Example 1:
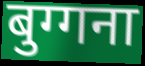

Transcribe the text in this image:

बुग्गना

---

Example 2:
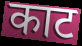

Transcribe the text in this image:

काट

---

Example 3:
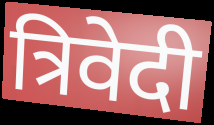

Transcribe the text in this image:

त्रिवेदी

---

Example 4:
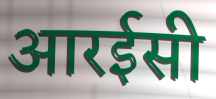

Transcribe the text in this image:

आरईसी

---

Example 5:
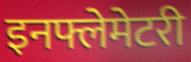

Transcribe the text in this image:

इनफ्लेमेटरी